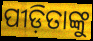
ପୀଡ଼ିତାଙ୍କୁ